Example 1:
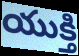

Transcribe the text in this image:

యుక్తి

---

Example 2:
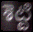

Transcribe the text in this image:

శెట్టి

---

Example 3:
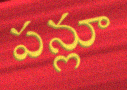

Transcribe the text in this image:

పన్లూ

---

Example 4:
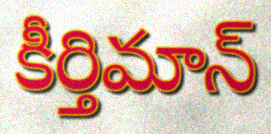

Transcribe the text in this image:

కీర్తిమాన్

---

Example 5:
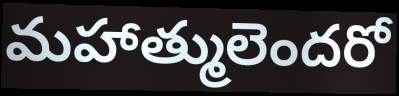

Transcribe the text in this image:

మహాత్ములెందరో